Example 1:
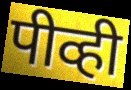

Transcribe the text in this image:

पीव्ही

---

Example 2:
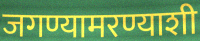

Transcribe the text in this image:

जगण्यामरण्याशी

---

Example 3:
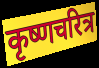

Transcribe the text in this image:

कृष्णचरित्र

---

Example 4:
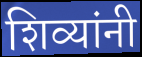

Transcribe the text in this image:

शिव्यांनी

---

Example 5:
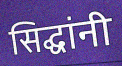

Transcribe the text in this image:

सिद्घांनी